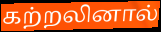
கற்றலினால்